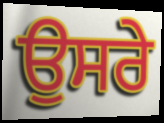
ਉਸਰੇ